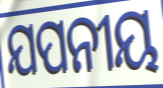
ଯପନୀୟ